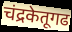
चंद्रकेतूगढ